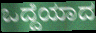
ಒದ್ದೆಯಾದ